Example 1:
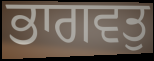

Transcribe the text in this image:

ਭਾਗਵਤੁ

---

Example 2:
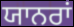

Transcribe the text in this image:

ਯਾਨਰਾਂ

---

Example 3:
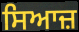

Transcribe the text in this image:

ਸਿਆਜ਼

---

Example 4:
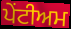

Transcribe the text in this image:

ਪੇਂਟੀਅਮ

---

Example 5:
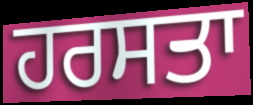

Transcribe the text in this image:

ਹਰਸਤਾ